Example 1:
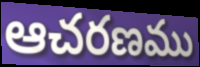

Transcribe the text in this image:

ఆచరణము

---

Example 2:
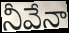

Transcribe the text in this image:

నీవేనా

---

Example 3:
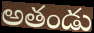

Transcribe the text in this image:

అతండు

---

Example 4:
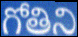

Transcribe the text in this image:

గోతిని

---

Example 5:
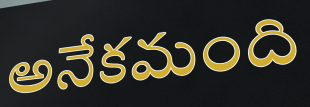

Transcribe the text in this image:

అనేకమంది